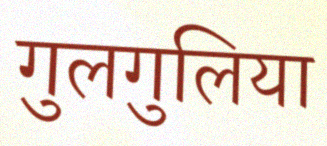
गुलगुलिया